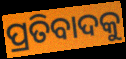
ପ୍ରତିବାଦକୁ